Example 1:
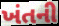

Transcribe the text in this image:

ખંતની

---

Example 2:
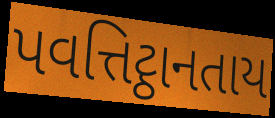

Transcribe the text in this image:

પવત્તિટ્ઠાનતાય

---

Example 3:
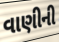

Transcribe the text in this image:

વાણીની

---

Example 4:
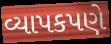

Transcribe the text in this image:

વ્યાપકપણે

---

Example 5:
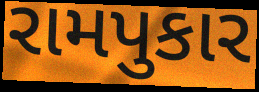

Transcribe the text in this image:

રામપુકાર